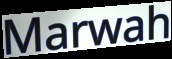
Marwah